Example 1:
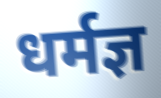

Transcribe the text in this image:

धर्मज्ञ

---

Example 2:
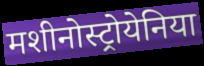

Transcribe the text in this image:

मशीनोस्ट्रोयेनिया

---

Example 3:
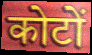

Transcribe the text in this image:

कोटों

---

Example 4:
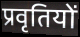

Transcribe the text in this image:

प्रवृतियों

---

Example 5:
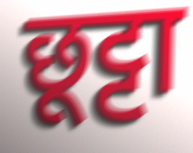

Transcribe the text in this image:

छूट्टा